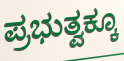
ಪ್ರಭುತ್ವಕ್ಕೂ